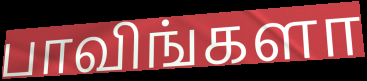
பாவிங்களா